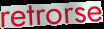
retrorse